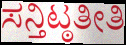
ಸನ್ತಿಟ್ಠತೀತಿ